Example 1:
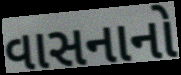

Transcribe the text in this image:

વાસનાનો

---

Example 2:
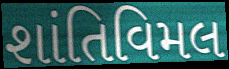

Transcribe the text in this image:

શાંતિવિમલ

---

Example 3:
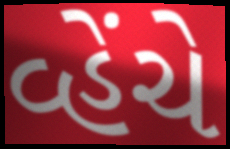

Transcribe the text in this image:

વ્હેંચે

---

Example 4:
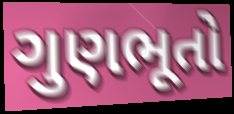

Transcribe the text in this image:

ગુણભૂતો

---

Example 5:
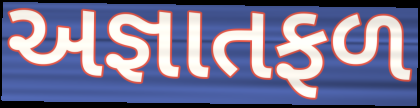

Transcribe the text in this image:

અજ્ઞાતફળ